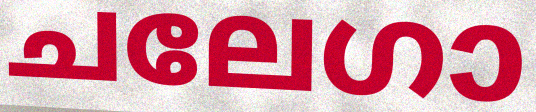
ചലേഗാ